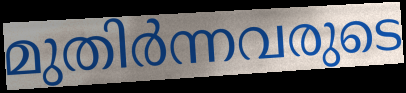
മുതിർന്നവരുടെ